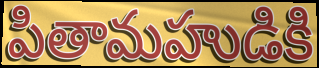
పితామహుడికి